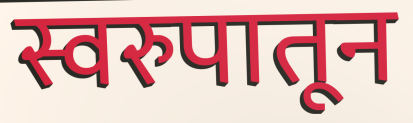
स्वरुपातून